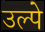
उल्पे